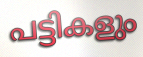
പട്ടികളും